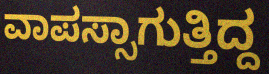
ವಾಪಸ್ಸಾಗುತ್ತಿದ್ದ